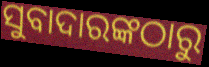
ସୁବାଦାରଙ୍କଠାରୁ